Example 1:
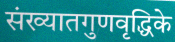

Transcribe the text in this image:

संख्यातगुणवृद्धिके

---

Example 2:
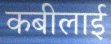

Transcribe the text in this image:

कबीलाई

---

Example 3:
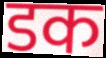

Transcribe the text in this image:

डक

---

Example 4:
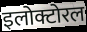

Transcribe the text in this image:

इलोक्टोरल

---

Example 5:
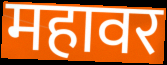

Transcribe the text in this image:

महावर